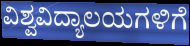
ವಿಶ್ವವಿದ್ಯಾಲಯಗಳಿಗೆ